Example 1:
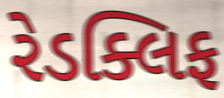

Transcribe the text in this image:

રેડક્લિફ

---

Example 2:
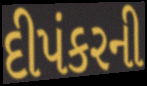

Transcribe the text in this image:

દીપંકરની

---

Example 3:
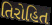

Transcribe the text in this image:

તિરોહિત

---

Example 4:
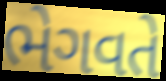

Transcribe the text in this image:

ભેગવતે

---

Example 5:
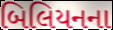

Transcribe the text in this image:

બિલિયનના